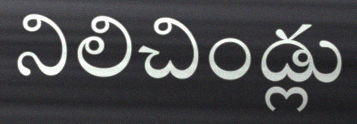
నిలిచిండ్లు